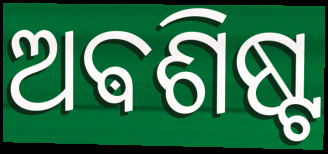
ଅଵଶିଷ୍ଟ